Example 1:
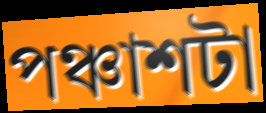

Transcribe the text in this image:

পঞ্চাশটা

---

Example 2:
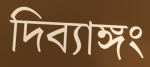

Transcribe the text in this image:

দিব্যাঙ্গং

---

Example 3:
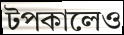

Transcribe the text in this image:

টপকালেও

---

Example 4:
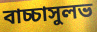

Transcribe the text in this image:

বাচ্চাসুলভ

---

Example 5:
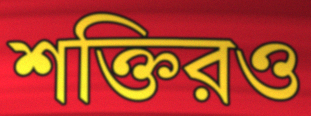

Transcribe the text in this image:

শক্তিরও